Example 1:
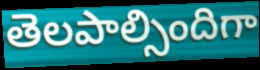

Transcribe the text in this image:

తెలపాల్సిందిగా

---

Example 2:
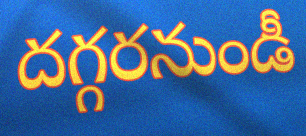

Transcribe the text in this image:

దగ్గరనుండీ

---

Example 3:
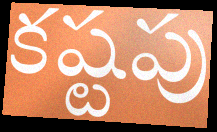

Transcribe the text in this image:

కష్టపు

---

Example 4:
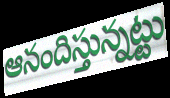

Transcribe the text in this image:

ఆనందిస్తున్నట్టు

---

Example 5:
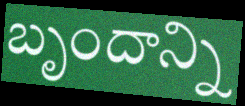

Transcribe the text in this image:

బృందాన్ని